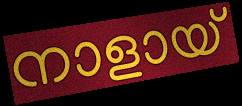
നാളായ്